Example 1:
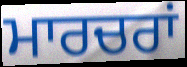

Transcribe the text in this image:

ਮਾਰਚਰਾਂ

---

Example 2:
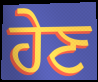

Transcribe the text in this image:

ਹੇਣ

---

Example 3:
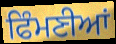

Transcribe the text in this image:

ਫਿੰਮਣੀਆਂ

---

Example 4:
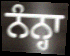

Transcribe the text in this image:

ਨੰਨ੍ਹਾ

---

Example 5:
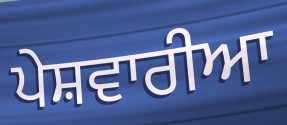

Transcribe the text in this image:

ਪੇਸ਼ਵਾਰੀਆ